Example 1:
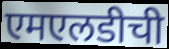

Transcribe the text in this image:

एमएलडीची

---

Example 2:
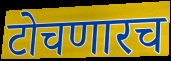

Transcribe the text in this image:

टोचणारच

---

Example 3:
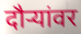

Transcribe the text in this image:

दौऱ्यांवर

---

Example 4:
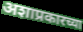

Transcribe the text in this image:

अशाप्रकारच्या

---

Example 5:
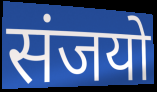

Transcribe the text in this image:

संजयो